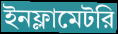
ইনফ্লামেটরি